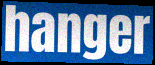
hanger